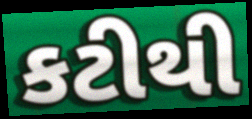
કટીથી